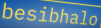
besibhalo